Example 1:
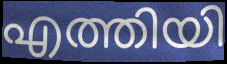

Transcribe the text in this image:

എത്തിയി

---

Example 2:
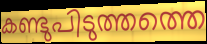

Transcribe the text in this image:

കണ്ടുപിടുത്തത്തെ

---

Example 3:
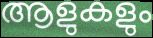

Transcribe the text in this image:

ആളുകളും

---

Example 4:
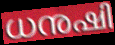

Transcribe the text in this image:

ധനുഷി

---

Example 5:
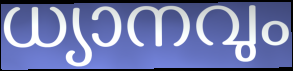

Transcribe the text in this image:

ധ്യാനവും